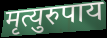
मृत्युरुपाय